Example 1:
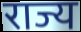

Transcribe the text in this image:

राज्य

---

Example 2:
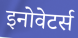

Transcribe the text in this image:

इनोवेटर्स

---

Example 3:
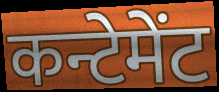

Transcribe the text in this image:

कन्टेमेंट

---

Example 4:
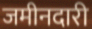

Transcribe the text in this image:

जमीनदारी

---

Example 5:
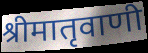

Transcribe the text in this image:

श्रीमातृवाणी